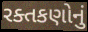
રક્તકણોનું